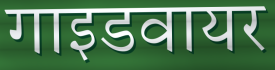
गाइडवायर